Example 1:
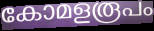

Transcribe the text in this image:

കോമളരൂപം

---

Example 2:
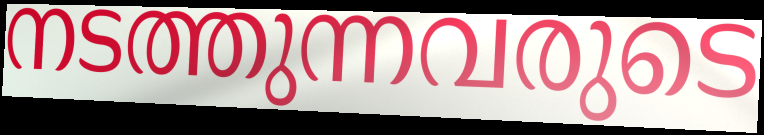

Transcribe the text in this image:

നടത്തുന്നവരുടെ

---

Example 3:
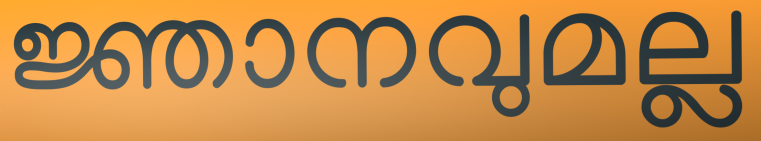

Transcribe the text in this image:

ജ്ഞാനവുമല്ല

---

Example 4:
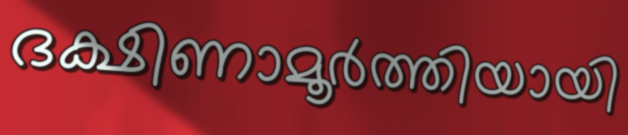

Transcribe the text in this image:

ദക്ഷിണാമൂർത്തിയായി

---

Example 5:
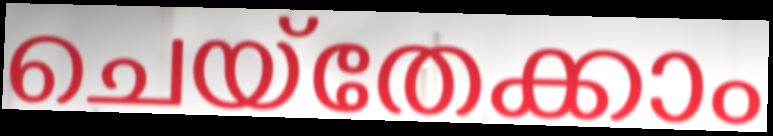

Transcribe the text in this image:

ചെയ്‌തേക്കാം